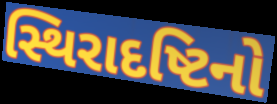
સ્થિરાદષ્ટિનો